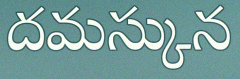
దమస్కున